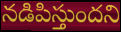
నడిపిస్తుందని